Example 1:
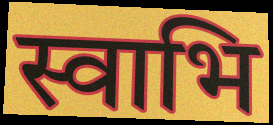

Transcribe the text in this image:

स्वाभि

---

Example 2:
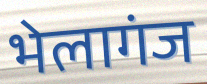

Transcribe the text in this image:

भेलागंज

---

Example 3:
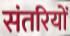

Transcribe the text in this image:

संतरियों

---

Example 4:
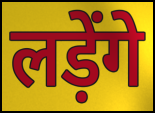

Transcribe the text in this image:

लड़ेंगे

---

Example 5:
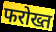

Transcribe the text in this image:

फरोख्त